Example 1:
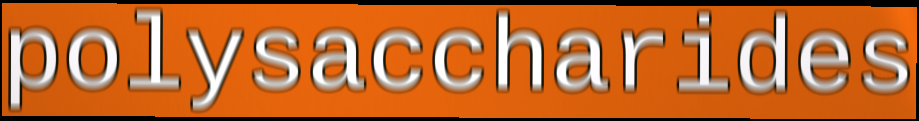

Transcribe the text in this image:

polysaccharides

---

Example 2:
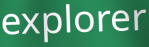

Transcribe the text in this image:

explorer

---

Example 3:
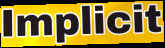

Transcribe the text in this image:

Implicit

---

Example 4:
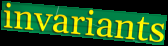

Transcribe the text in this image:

invariants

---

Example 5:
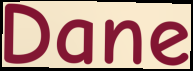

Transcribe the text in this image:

Dane